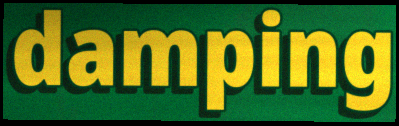
damping